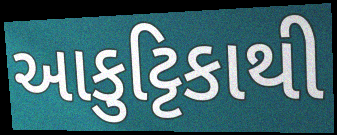
આકુટ્ટિકાથી